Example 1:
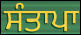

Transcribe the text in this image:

ਸੰਤਾਪਾ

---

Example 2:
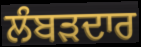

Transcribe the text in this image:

ਲੰਬੜਦਾਰ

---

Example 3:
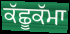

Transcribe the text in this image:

ਕੱਛੂਕੱਮਾ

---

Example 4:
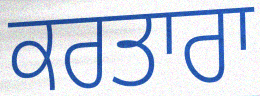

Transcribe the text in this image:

ਕਰਤਾਰਾ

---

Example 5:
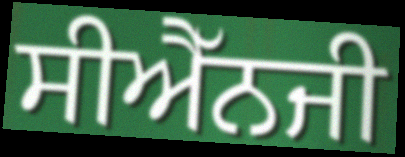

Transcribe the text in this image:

ਸੀਐੱਨਜੀ